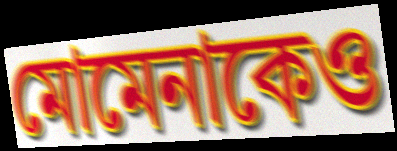
মোমেনাকেও